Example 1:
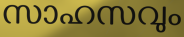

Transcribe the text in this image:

സാഹസവും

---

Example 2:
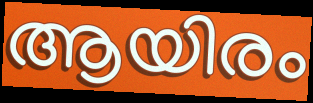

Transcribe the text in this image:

ആയിരം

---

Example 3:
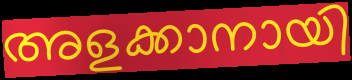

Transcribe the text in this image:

അളക്കാനായി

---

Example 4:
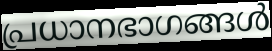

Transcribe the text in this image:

പ്രധാനഭാഗങ്ങൾ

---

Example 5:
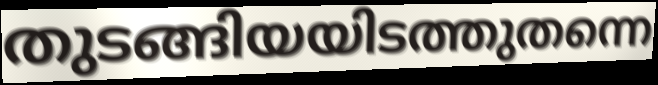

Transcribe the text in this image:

തുടങ്ങിയയിടത്തുതന്നെ